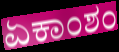
ಏಕಾಂಶಂ